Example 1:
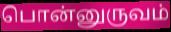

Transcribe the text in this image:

பொன்னுருவம்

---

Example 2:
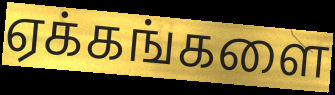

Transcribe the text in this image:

ஏக்கங்களை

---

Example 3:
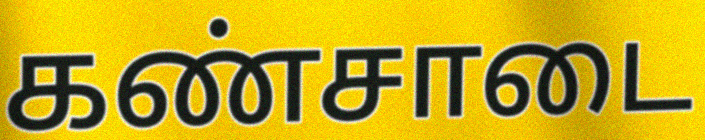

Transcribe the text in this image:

கண்சாடை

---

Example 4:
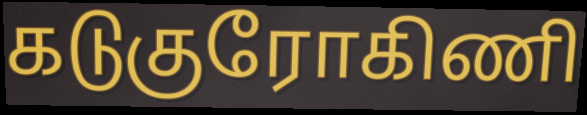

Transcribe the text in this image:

கடுகுரோகிணி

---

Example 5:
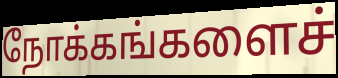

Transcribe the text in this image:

நோக்கங்களைச்